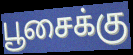
பூசைக்கு